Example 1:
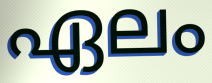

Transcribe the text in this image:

ഏലം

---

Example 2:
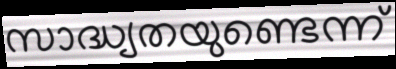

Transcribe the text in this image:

സാദ്ധ്യതയുണ്ടെന്ന്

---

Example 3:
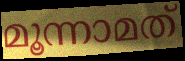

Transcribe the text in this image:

മൂന്നാമത്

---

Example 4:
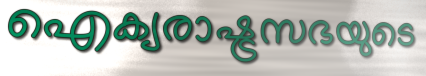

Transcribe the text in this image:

ഐക്യരാഷ്ട്രസഭയുടെ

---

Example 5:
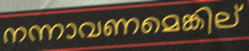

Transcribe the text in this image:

നന്നാവണമെങ്കില്